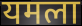
यमला